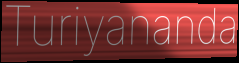
Turiyananda